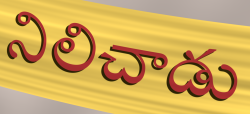
నిలిచాడు